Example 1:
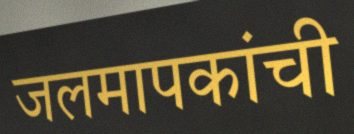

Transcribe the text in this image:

जलमापकांची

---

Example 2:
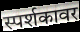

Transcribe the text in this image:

स्पर्शकावर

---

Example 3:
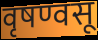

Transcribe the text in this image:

वृषण्वसू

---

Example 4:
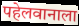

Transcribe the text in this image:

पहेलवानाला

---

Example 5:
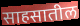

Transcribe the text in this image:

साहसातील